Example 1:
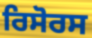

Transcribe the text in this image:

ਰਿਸੋਰਸ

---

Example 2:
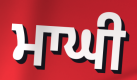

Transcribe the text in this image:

ਮਾਘੀ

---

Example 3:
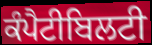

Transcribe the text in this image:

ਕੰਪੈਟੀਬਿਲਟੀ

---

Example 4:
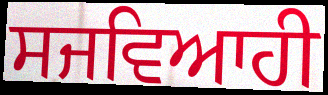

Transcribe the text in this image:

ਸਜਵਿਆਹੀ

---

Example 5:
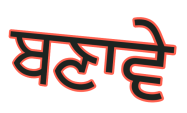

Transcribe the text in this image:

ਬਣਾਵੇ